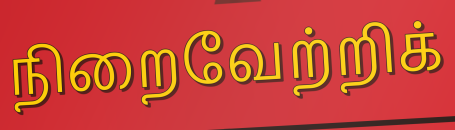
நிறைவேற்றிக்